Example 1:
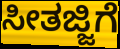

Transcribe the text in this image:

ಸೀತಜ್ಜಿಗೆ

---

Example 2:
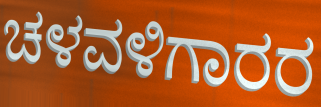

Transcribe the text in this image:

ಚಳವಳಿಗಾರರ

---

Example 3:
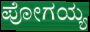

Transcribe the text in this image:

ಪೋಗಯ್ಯ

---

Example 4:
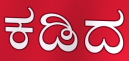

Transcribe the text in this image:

ಕಡಿದ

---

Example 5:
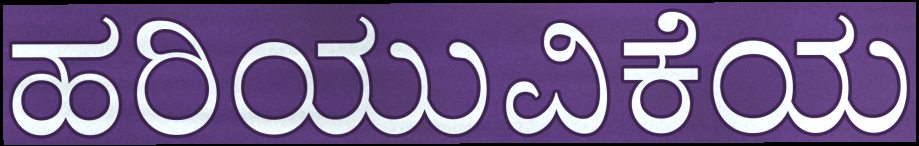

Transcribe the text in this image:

ಹರಿಯುವಿಕೆಯ